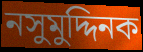
নসুমুদ্দিনক